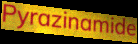
Pyrazinamide